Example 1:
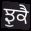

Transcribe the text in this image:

ਝੁਕੈ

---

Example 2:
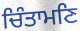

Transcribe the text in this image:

ਚਿੰਤਾਮਣਿ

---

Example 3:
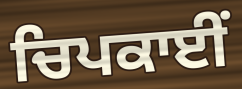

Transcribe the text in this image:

ਚਿਪਕਾਈਂ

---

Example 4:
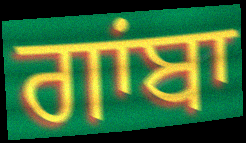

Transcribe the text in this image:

ਗਾਂਬਾ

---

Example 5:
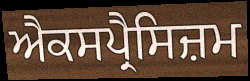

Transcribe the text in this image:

ਐਕਸਪ੍ਰੈਸਿਜ਼ਮ